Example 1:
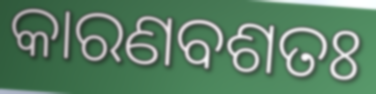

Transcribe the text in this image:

କାରଣବଶତଃ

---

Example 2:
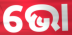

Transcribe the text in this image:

ଭୋ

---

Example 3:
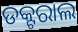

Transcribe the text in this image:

ଡକ୍ଟରାଲ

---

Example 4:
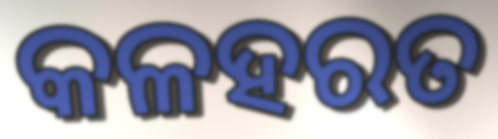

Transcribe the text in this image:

କଳହରତ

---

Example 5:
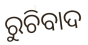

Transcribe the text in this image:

ରୁଚିବାଦ